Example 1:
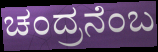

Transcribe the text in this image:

ಚಂದ್ರನೆಂಬ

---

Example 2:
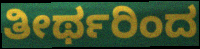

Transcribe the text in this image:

ತೀರ್ಥರಿಂದ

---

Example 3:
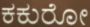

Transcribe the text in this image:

ಕಕುರೋ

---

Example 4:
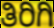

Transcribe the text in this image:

ತಿರಿಗಿ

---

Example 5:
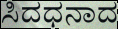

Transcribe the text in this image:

ಸಿದಧನಾದ